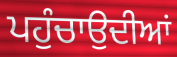
ਪਹੁੰਚਾਉਦੀਆਂ